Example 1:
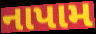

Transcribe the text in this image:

નાપામ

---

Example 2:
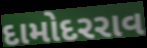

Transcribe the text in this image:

દામોદરરાવ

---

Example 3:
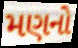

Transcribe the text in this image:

મણનો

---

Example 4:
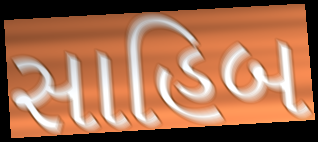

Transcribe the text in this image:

સાહિબ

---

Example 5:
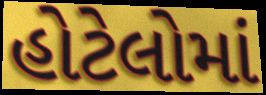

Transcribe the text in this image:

હોટેલોમાં